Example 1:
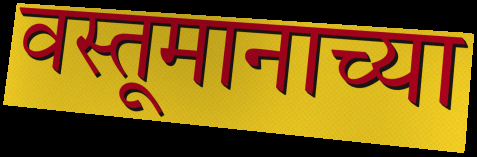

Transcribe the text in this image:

वस्तूमानाच्या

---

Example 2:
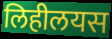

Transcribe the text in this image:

लिहीलयस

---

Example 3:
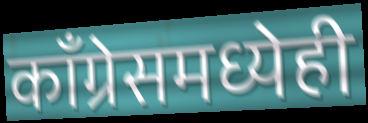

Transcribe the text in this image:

काँग्रेसमध्येही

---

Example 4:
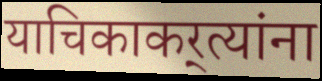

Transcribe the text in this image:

याचिकाकर्त्यांना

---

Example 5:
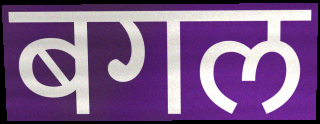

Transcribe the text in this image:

बगल